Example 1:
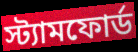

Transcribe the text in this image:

স্ট্যামফোর্ড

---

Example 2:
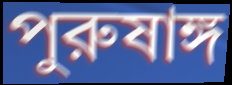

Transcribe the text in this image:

পুরুষাঙ্গ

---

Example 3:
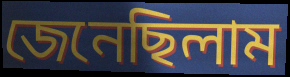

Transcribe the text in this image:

জেনেছিলাম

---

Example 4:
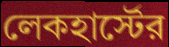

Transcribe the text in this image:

লেকহার্স্টের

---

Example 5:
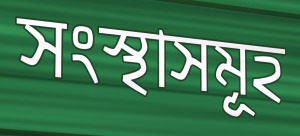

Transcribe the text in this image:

সংস্থাসমূহ